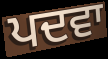
ਪਦਵਾ